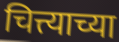
चित्त्याच्या